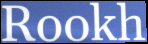
Rookh